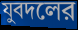
যুবদলের